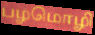
பழமொழி